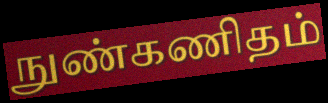
நுண்கணிதம்